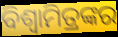
ବିଶ୍ୱାମିତ୍ରଙ୍କର